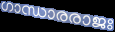
ഗാന്ധാരരാജഃ